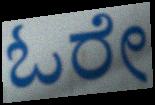
ಓರೇ